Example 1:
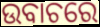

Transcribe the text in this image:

ଉବାଚରେ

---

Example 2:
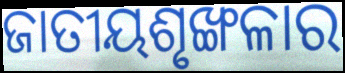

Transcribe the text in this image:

ଜାତୀୟଶୃଙ୍ଖଳାର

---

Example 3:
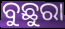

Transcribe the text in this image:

ବୁଛୁରା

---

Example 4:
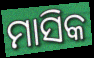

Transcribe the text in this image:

ମାସିକ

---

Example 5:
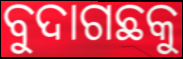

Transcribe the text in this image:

ବୁଦାଗଛକୁ